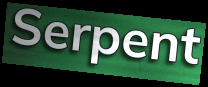
Serpent